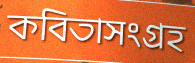
কবিতাসংগ্রহ